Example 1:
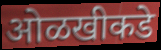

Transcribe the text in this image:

ओळखीकडे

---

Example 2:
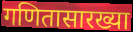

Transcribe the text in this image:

गणितासारख्या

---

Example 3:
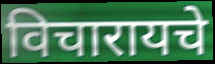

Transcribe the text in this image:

विचारायचे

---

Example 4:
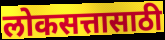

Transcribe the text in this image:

लोकसत्तासाठी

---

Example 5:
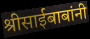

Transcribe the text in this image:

श्रीसाईबाबांनी